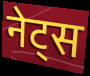
नेट्स